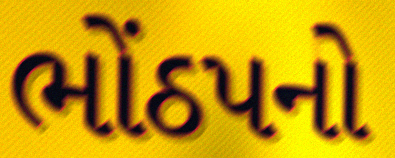
ભોંઠપનો